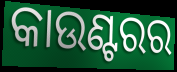
କାଉଣ୍ଟରର